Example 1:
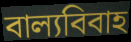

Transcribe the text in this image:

বাল্যবিবাহ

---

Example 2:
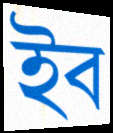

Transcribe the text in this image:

ইব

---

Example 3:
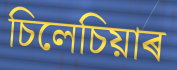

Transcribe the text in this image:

চিলেচিয়াৰ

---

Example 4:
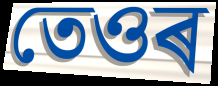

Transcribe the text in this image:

তেওৰ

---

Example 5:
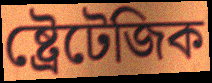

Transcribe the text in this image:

ষ্ট্ৰেটেজিক